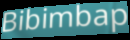
Bibimbap